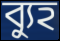
ব্যুহ